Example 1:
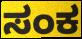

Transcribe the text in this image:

ಸಂಕ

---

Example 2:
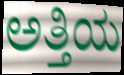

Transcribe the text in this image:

ಅತ್ತಿಯ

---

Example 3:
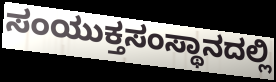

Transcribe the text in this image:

ಸಂಯುಕ್ತಸಂಸ್ಥಾನದಲ್ಲಿ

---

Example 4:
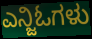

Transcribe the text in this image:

ಎನ್ಜಿಓಗಳು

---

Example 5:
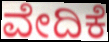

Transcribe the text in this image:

ವೇದಿಕೆ